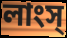
লাংস্